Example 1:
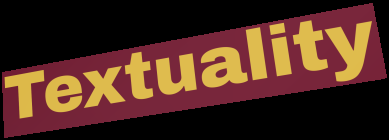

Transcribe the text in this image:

Textuality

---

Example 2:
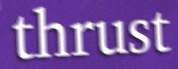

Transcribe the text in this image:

thrust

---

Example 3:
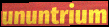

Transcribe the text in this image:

ununtrium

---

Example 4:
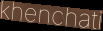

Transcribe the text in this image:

khenchati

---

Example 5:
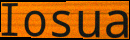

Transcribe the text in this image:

Iosua